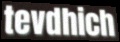
tevdhich